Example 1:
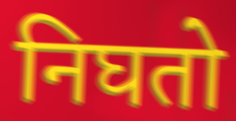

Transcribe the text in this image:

निघतो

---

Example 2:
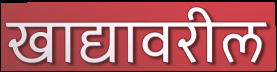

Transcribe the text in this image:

खाद्यावरील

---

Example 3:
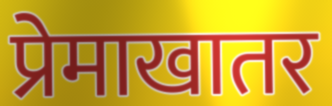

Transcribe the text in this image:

प्रेमाखातर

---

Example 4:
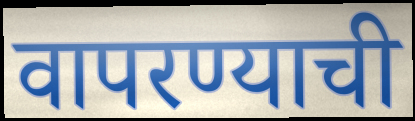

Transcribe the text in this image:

वापरण्याची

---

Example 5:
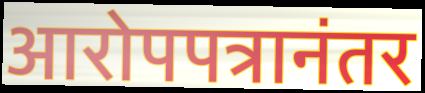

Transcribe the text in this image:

आरोपपत्रानंतर